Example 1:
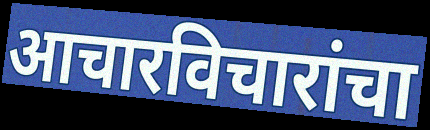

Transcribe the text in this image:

आचारविचारांचा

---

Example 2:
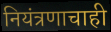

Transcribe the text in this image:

नियंत्रणाचाही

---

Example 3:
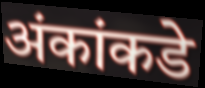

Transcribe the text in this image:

अंकांकडे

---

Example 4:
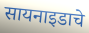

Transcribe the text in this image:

सायनाइडाचे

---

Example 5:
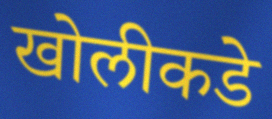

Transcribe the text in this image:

खोलीकडे